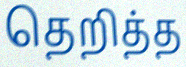
தெறித்த